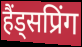
हैंड्सप्रिंग